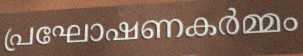
പ്രഘോഷണകർമ്മം